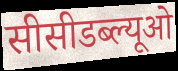
सीसीडब्ल्यूओ